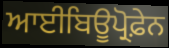
ਆਈਬਿਊਪ੍ਰੋਫ਼ੇਨ